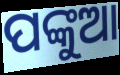
ପଙ୍କୁଆ